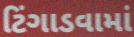
ટિંગાડવામાં